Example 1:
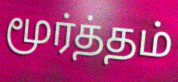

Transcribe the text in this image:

மூர்த்தம்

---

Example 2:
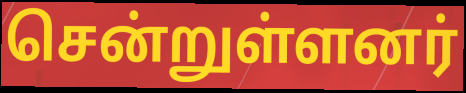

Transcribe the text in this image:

சென்றுள்ளனர்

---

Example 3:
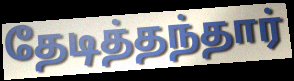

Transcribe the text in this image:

தேடித்தந்தார்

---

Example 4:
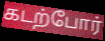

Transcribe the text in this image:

கடற்போர்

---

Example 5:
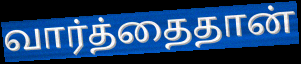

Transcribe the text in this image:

வார்த்தைதான்